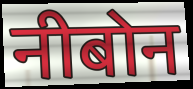
नीबोन